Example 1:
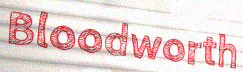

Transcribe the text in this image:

Bloodworth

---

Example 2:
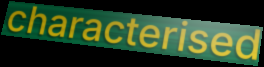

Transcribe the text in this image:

characterised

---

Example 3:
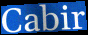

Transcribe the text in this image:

Cabir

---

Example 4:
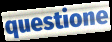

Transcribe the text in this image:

questione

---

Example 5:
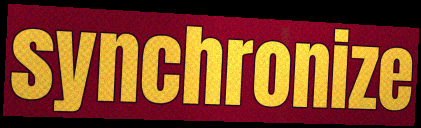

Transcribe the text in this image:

synchronize